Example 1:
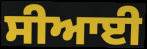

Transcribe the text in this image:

ਸੀਆਈ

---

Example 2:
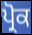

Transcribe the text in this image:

ਪ੍ਰੋਕ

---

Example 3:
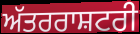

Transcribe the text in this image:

ਅੱਤਰਰਾਸ਼ਟਰੀ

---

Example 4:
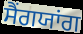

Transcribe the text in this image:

ਸੈਂਗਯਾਂਗ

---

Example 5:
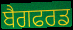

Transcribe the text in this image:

ਬੈਗਫਰਡ